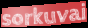
sorkuvai